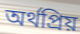
অর্থপ্রিয়